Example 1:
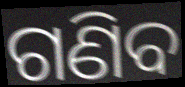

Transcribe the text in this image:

ଗଣିବ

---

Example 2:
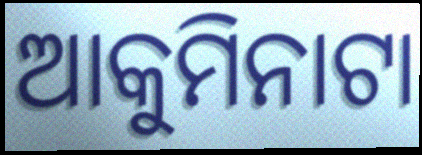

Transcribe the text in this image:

ଆକୁମିନାଟା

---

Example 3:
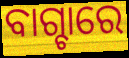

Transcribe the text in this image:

ବାଗ୍ଚାରେ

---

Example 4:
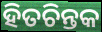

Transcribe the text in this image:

ହିତଚିନ୍ତକ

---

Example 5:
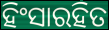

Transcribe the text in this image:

ହିଂସାରହିତ